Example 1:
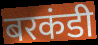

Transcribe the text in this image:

बरकंडी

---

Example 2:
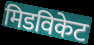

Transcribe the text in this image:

मिडविकेट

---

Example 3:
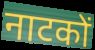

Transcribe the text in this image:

नाटकों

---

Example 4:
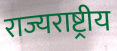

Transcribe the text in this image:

राज्यराष्ट्रीय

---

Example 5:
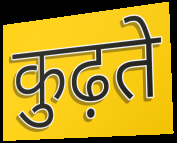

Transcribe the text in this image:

कुढ़ते